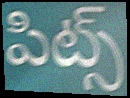
పిట్స్